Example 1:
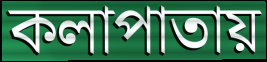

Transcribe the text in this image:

কলাপাতায়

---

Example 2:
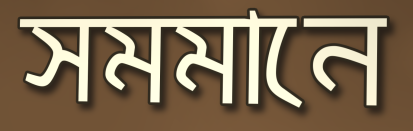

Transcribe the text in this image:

সমমানে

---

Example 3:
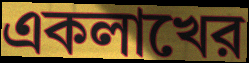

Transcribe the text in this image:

একলাখের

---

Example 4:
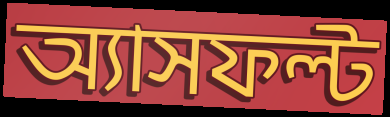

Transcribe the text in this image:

অ্যাসফল্ট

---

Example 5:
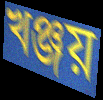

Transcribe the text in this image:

খঞ্জয়